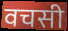
वचसी